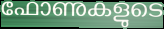
ഫോണുകളുടെ